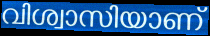
വിശ്വാസിയാണ്